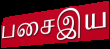
பசைஇய